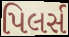
પિલર્સ